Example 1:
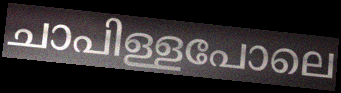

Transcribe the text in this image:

ചാപിള്ളപോലെ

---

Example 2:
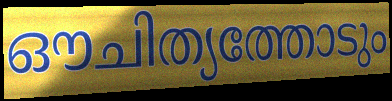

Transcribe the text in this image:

ഔചിത്യത്തോടും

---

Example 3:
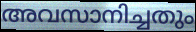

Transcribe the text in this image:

അവസാനിച്ചതും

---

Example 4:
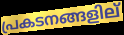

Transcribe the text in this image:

പ്രകടനങ്ങളില്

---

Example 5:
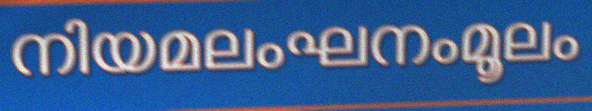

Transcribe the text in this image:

നിയമലംഘനംമൂലം